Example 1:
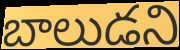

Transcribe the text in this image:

బాలుడని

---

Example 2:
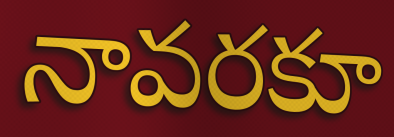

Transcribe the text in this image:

నావరకూ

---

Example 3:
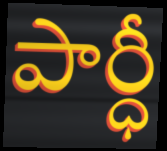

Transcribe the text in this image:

పార్ధీ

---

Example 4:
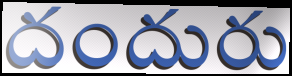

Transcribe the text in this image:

దందురు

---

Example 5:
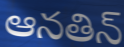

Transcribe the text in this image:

ఆనతిన్